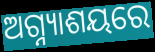
ଅଗ୍ନ୍ୟାଶୟରେ